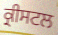
ਕ੍ਰੀਸਟਲ